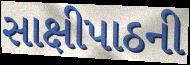
સાક્ષીપાઠની